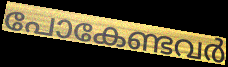
പോകേണ്ടവർ